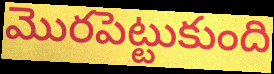
మొరపెట్టుకుంది